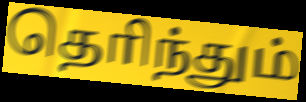
தெரிந்தும்